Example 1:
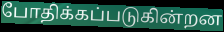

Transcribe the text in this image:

போதிக்கப்படுகின்றன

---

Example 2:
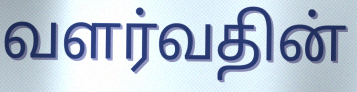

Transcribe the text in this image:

வளர்வதின்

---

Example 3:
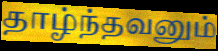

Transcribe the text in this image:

தாழ்ந்தவனும்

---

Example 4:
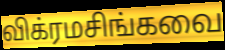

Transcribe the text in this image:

விக்ரமசிங்கவை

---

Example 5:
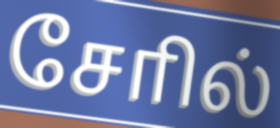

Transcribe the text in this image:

சேரில்